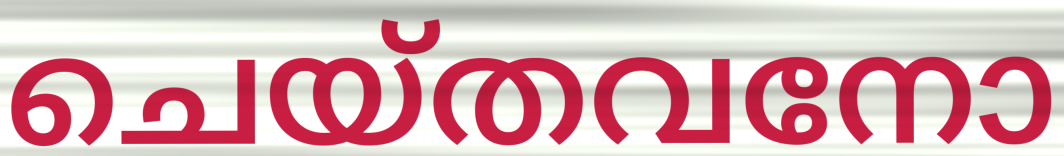
ചെയ്തവനോ